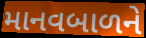
માનવબાળને